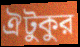
ঐটুকুর